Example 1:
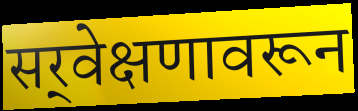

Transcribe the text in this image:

सर्वेक्षणावरून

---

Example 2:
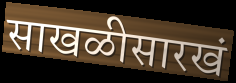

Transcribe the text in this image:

साखळीसारखं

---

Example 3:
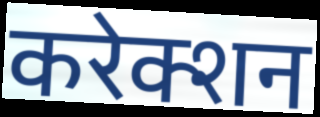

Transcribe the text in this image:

करेक्शन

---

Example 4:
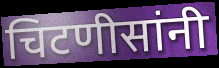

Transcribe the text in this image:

चिटणीसांनी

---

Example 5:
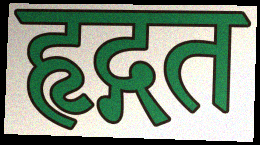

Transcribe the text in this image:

हृद्गत